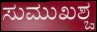
ಸುಮುಖಶ್ಚ